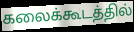
கலைக்கூடத்தில்